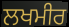
ਲਖਮੀਰ